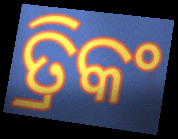
ତ୍ରିକଂ